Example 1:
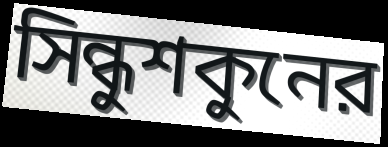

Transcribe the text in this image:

সিন্ধুশকুনের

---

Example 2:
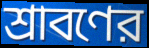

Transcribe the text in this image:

শ্রাবণের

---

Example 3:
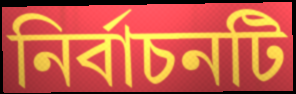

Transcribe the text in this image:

নির্বাচনটি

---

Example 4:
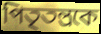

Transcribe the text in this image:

পিতৃতন্ত্রকে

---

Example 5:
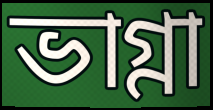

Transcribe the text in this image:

ভাগ্না